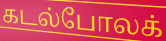
கடல்போலக்